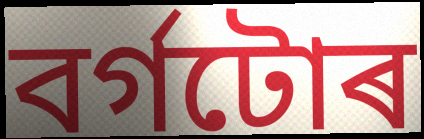
বৰ্গটোৰ